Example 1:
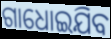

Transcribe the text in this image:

ଗାଧୋଇଯିବ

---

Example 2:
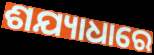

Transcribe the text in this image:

ଶଯ୍ୟାଧାରେ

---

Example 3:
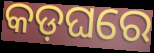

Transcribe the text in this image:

କଡ଼ଘରେ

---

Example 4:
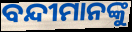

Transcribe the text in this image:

ବନ୍ଦୀମାନଙ୍କୁ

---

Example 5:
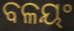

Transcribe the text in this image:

ବଳୟଂ